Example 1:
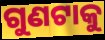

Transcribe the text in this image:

ଗୁଣଟାକୁ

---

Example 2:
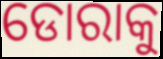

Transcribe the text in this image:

ଡୋରାକୁ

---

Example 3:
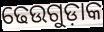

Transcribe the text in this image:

ଢେଉଗୁଡ଼ାକ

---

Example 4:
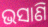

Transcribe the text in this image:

ଭସାଣି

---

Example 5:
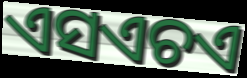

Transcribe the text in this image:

ଏସଏଚଏ